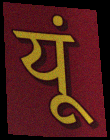
यूं